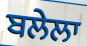
ਬਲੇਲਾ